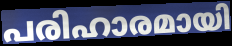
പരിഹാരമായി